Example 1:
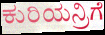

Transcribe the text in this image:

ಕುರಿಯನ್ರಿಗೆ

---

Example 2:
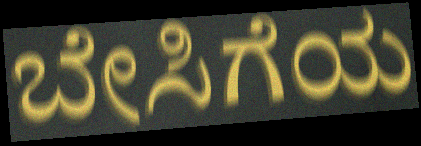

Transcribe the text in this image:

ಬೇಸಿಗೆಯ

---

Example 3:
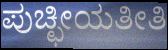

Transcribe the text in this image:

ಪುಚ್ಛೀಯತೀತಿ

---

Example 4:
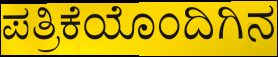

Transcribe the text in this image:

ಪತ್ರಿಕೆಯೊಂದಿಗಿನ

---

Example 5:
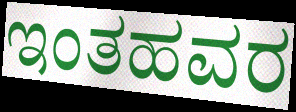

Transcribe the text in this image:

ಇಂತಹವರ